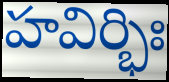
హవిర్భిః